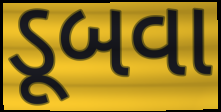
ડૂબવા